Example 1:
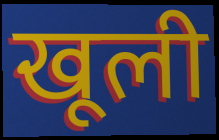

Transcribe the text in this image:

खूली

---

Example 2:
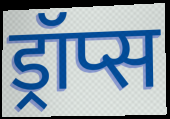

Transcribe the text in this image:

ड्रॉप्‍स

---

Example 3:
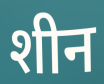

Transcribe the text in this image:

शीन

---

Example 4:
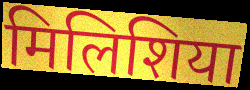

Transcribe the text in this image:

मिलिशिया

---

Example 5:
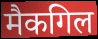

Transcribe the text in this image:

मैकगिल